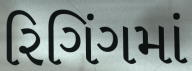
રિગિંગમાં